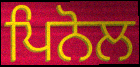
ਪਿਨੋਲ